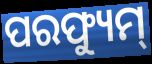
ପରଫ୍ୟୁମ୍